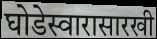
घोडेस्वारासारखी